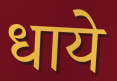
धाये